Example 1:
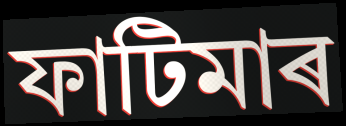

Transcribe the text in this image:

ফাটিমাৰ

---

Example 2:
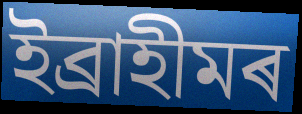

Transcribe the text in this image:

ইব্ৰাহীমৰ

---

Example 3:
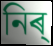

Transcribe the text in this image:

নিৰ্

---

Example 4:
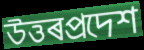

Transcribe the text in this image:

উত্তৰপ্ৰদেশ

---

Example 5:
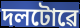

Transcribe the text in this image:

দলটোৱে